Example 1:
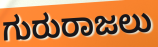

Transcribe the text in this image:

ಗುರುರಾಜಲು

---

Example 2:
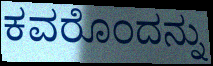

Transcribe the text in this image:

ಕವರೊಂದನ್ನು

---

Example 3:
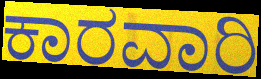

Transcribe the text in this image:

ಕಾರವಾರಿ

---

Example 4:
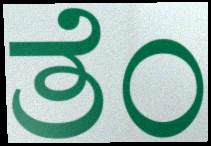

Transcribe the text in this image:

ತೆಂ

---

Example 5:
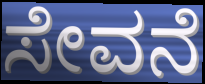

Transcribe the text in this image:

ಸೇವನೆ